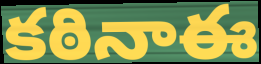
కఠినాఈ